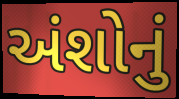
અંશોનું